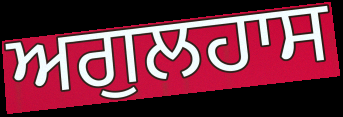
ਅਗੁਲਹਾਸ